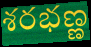
శరభణ్ణ